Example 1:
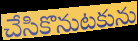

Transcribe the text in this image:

చేసికొనుటకును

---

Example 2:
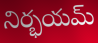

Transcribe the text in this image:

నిర్భయమ్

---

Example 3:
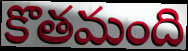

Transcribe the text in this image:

కొతమంది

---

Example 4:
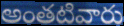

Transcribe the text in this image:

అంతటివారు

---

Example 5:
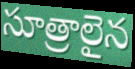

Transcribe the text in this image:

సూత్రాలైన